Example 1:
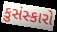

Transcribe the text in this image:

કુસંસ્કારો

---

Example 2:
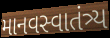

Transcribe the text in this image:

માનવસ્વાતંત્ર્ય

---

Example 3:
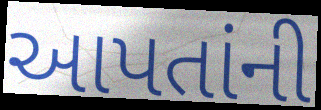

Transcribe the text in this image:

આપતાંની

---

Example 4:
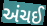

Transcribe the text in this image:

અંચઈ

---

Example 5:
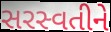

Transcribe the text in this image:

સરસ્વતીને